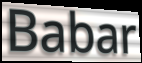
Babar